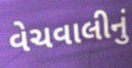
વેચવાલીનું